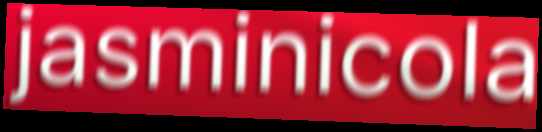
jasminicola